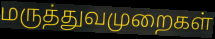
மருத்துவமுறைகள்